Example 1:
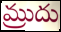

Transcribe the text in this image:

మ్రుదు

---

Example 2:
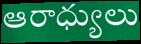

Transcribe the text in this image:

ఆరాధ్యులు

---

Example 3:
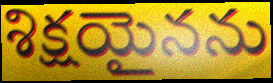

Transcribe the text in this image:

శిక్షయైనను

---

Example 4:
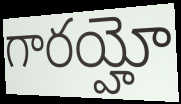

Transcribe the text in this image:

గారయ్హో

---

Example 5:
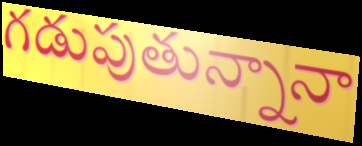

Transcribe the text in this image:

గడుపుతున్నానా